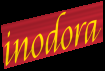
inodora